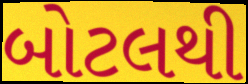
બોટલથી